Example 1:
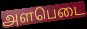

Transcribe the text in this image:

அளபெடை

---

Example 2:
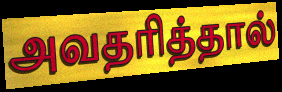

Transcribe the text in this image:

அவதரித்தால்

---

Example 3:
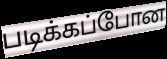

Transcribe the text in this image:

படிக்கப்போன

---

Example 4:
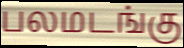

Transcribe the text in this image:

பலமடங்கு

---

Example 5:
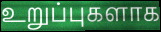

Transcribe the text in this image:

உறுப்புகளாக